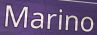
Marino